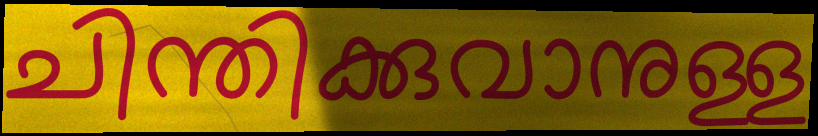
ചിന്തിക്കുവാനുള്ള